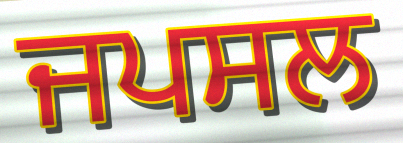
ਜਪਸਲ